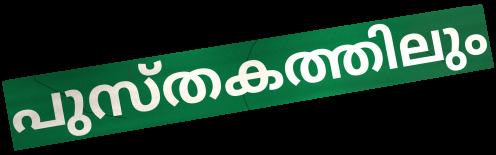
പുസ്തകത്തിലും